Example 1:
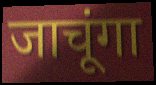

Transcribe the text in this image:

जाचूंगा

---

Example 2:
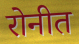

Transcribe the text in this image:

रोनीत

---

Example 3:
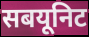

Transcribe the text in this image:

सबयूनिट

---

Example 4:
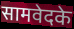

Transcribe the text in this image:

सामवेदके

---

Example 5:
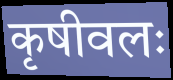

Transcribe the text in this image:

कृषीवलः